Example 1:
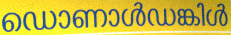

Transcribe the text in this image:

ഡൊണാൾഡങ്കിൾ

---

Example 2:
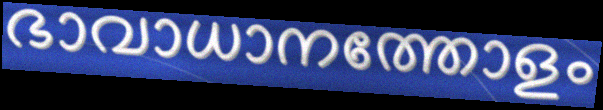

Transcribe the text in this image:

ഭാവാധാനത്തോളം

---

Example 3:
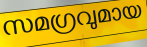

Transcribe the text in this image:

സമഗ്രവുമായ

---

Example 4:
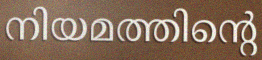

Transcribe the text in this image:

നിയമത്തിന്റെ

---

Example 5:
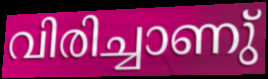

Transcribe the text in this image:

വിരിച്ചാണു്